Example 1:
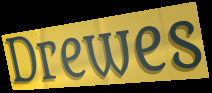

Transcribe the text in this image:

Drewes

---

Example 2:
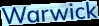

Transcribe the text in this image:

Warwick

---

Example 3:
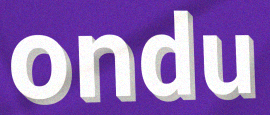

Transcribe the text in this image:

ondu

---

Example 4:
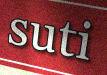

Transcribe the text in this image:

suti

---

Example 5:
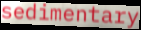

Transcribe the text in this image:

sedimentary